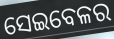
ସେଇବେଳର